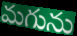
మగును